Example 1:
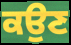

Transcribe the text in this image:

ਕਉਣ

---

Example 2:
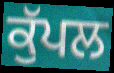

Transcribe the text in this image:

ਕੁੱਪਲ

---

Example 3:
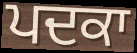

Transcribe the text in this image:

ਪਦਕਾ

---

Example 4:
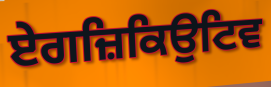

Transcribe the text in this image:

ਏਗਜ਼ਿਕਿਉਟਿਵ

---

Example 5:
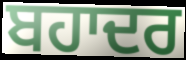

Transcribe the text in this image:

ਬਹਾਦਰ